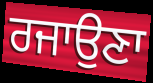
ਰਜਾਉਣਾ